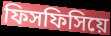
ফিসফিসিয়ে